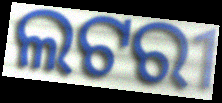
ଲଟରୀ